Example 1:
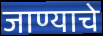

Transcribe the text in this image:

जाण्याचे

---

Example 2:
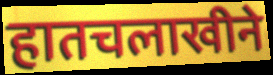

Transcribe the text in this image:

हातचलाखीने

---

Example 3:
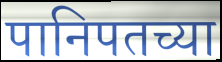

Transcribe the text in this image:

पानिपतच्या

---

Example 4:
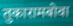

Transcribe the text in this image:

तुकारामबोवा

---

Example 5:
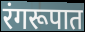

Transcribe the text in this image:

रंगरूपात